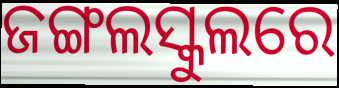
ଜଙ୍ଗଲସ୍କୁଲରେ